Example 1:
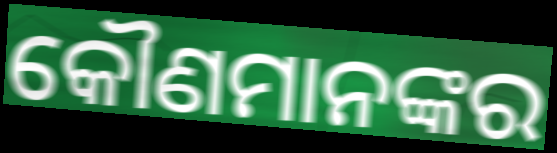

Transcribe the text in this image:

କୌଣମାନଙ୍କର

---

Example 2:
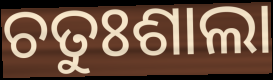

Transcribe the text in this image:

ଚତୁଃଶାଲା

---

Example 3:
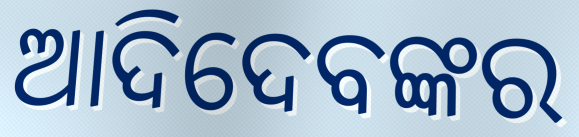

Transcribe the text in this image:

ଆଦିଦେବଙ୍କର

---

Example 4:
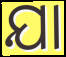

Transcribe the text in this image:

ଯା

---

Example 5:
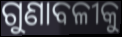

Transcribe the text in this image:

ଗୁଣାବଳୀକୁ